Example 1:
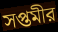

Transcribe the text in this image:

সপ্তমীর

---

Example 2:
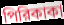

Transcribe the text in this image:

পিরিকাকা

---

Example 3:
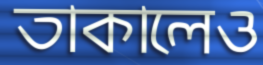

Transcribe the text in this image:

তাকালেও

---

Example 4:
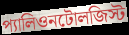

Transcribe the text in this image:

প্যালিওনটোলজিস্ট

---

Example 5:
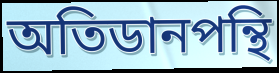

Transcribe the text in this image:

অতিডানপন্থি